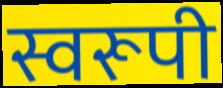
स्वरूपी